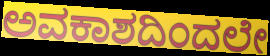
ಅವಕಾಶದಿಂದಲೇ